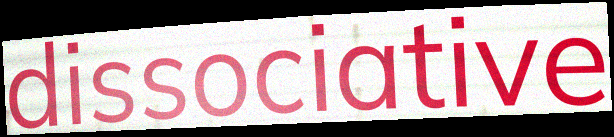
dissociative